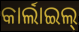
କାର୍ଲାଇଲ୍